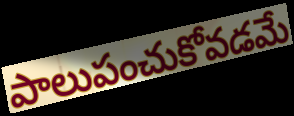
పాలుపంచుకోవడమే